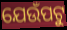
ଯେଉଁପଟୁ